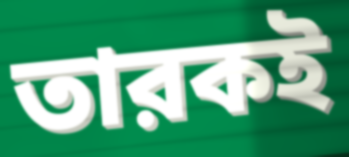
তারকই